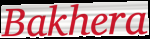
Bakhera